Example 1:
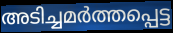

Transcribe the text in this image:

അടിച്ചമർത്തപ്പെട്ട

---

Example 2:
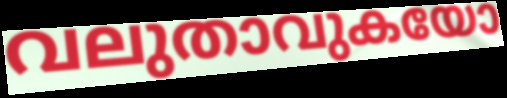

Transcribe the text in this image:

വലുതാവുകയോ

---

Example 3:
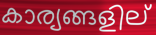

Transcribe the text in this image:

കാര്യങ്ങളില്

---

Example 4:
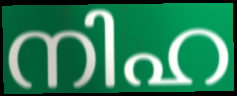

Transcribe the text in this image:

നിഹ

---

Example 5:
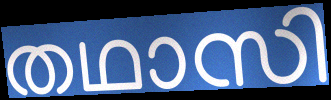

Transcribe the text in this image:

തഥാസി